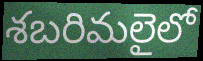
శబరిమలైలో